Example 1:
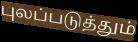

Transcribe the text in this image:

புலப்படுத்தும்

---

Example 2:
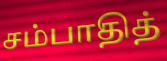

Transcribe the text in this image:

சம்பாதித்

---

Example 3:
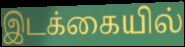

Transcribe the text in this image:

இடக்கையில்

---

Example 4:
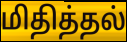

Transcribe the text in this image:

மிதித்தல்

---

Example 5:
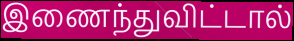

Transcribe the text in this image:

இணைந்துவிட்டால்